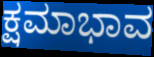
ಕ್ಷಮಾಭಾವ